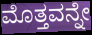
ಮೊತ್ತವನ್ನೇ